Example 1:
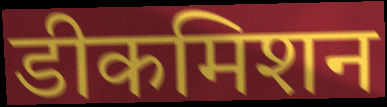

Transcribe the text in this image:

डीकमिशन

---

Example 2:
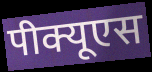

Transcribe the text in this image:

पीक्यूएस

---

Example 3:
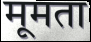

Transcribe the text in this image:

मूमता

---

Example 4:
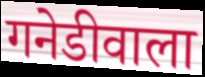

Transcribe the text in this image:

गनेडीवाला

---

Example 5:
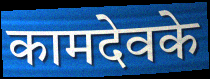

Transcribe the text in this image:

कामदेवके